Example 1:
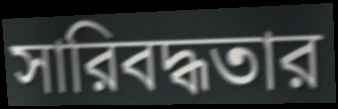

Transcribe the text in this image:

সারিবদ্ধতার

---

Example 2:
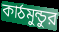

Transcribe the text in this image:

কাঠমুন্ডুর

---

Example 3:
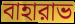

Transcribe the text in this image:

বাহারাভ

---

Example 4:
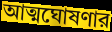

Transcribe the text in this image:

আত্মঘোষণার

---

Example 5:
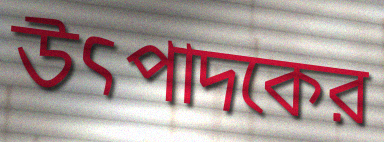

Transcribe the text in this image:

উৎপাদকের